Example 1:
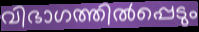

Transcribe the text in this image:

വിഭാഗത്തിൽപ്പെടും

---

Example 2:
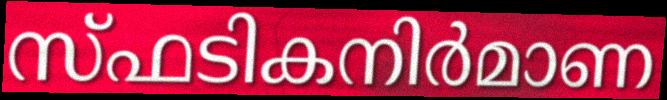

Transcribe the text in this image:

സ്ഫടികനിർമാണ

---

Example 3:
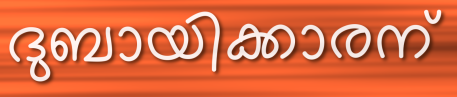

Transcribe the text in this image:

ദുബായിക്കാരന്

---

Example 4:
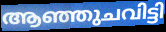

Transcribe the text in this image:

ആഞ്ഞുചവിട്ടി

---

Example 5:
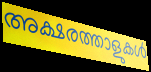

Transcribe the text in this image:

അക്ഷരത്താളുകൾ